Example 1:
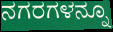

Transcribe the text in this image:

ನಗರಗಳನ್ನೂ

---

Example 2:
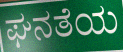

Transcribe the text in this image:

ಘನತೆಯ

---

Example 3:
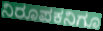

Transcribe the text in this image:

ನಿರೂಪಕನಿಗೂ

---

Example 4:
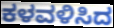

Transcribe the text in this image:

ಕಳವಳಿಸಿದ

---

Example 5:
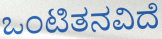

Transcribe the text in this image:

ಒಂಟಿತನವಿದೆ